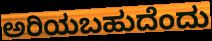
ಅರಿಯಬಹುದೆಂದು